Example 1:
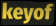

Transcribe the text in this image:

keyof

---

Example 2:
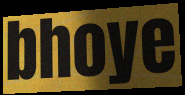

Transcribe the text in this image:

bhoye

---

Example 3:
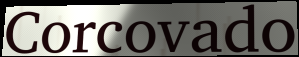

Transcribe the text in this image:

Corcovado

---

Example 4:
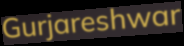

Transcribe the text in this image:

Gurjareshwar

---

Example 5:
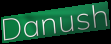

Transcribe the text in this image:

Danush